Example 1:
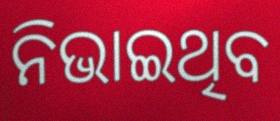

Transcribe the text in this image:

ନିଭାଇଥିବ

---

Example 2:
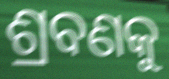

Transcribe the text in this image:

ଶ୍ରବଣକୁ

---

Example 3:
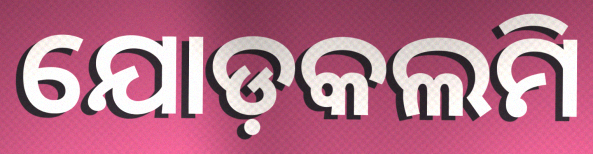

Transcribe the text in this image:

ଯୋଡ଼କଲମି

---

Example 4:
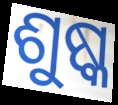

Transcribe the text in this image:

ଶୁଷ୍କ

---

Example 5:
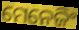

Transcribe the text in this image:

ମେନେଜିଂ